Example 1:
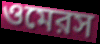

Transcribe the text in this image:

ওমেরস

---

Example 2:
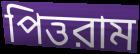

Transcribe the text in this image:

পিত্তরাম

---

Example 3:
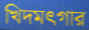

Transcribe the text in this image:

খিদমৎগার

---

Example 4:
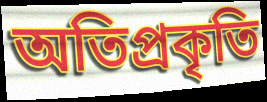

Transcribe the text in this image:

অতিপ্রকৃতি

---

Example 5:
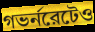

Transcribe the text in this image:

গভর্নরেটেও